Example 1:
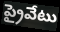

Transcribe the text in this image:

ప్రైవేటు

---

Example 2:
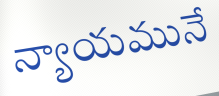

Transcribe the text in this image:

న్యాయమునే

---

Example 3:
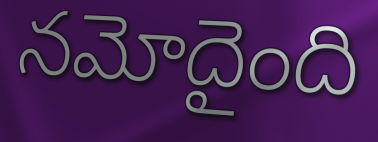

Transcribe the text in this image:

నమోదైంది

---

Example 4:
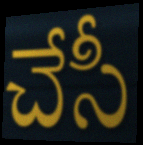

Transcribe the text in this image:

చేసీ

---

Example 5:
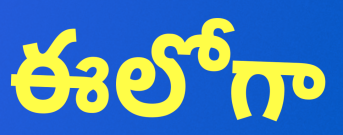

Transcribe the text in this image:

ఈలోగా